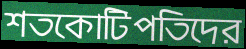
শতকোটিপতিদের